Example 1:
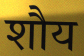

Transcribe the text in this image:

शौय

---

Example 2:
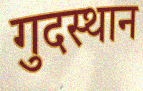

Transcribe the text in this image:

गुदस्थान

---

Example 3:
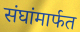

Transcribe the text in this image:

संघांमार्फत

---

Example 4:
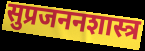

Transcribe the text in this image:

सुप्रजननशास्त्र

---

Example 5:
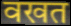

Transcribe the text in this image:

वखत